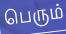
பெரும்